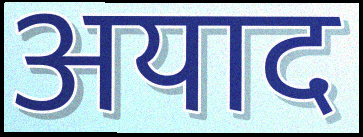
अयाद